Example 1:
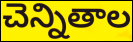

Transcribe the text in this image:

చెన్నితాల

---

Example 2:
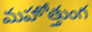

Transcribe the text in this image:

మహోత్తుంగ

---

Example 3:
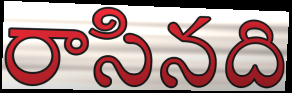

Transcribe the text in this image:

రాసినది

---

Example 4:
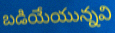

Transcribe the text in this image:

బడియేయున్నవి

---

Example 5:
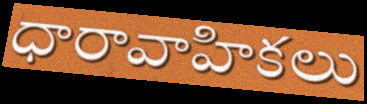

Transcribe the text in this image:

ధారావాహికలు